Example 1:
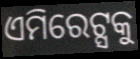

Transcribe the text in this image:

ଏମିରେଟ୍ସକୁ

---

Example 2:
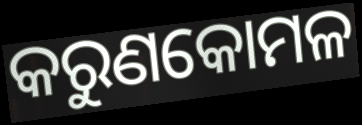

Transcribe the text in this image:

କରୁଣକୋମଳ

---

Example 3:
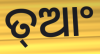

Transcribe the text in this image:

ତ୍ଆଂ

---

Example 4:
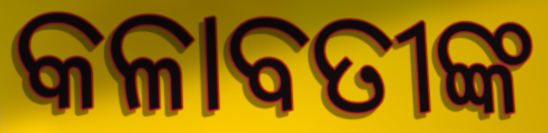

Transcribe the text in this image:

କଳାବତୀଙ୍କ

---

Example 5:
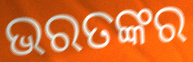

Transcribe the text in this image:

ଭରତଙ୍କର